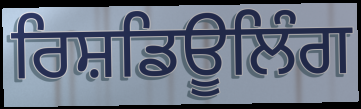
ਰਿਸ਼ਡਿਊਲਿੰਗ